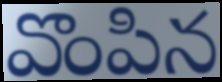
వొంపిన